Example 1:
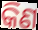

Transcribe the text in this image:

କିଣ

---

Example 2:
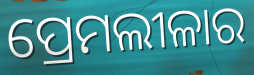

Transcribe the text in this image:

ପ୍ରେମଲୀଳାର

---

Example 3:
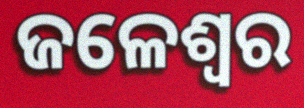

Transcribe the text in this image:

ଜଳେଶ୍ବର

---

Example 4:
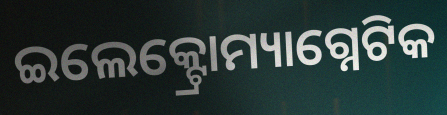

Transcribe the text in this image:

ଇଲେକ୍ଟ୍ରୋମ୍ୟାଗ୍ନେଟିକ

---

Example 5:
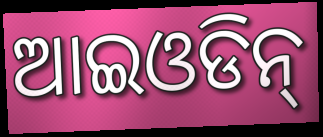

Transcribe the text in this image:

ଆଇଓଡିନ୍